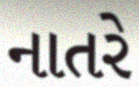
નાતરે